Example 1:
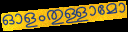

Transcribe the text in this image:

ഓളംതുള്ളാമോ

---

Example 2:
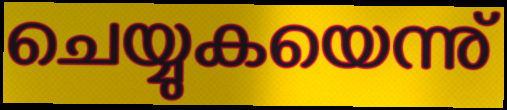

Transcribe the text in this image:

ചെയ്യുകയെന്നു്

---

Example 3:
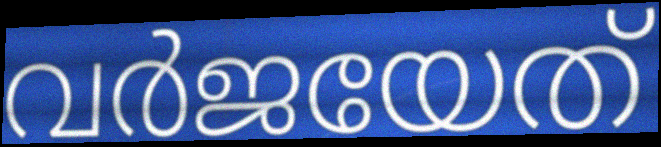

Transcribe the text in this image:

വർജയേത്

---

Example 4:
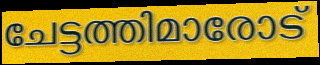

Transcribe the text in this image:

ചേട്ടത്തിമാരോട്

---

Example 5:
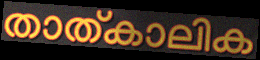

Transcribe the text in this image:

താത്കാലിക